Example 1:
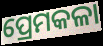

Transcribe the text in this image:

ପ୍ରେମକଳା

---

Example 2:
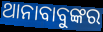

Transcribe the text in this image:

ଥାନାବାବୁଙ୍କର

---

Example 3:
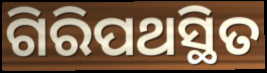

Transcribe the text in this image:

ଗିରିପଥସ୍ଥିତ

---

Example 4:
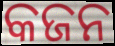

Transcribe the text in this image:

କଜନ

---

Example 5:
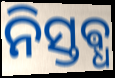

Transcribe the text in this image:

ନିସ୍ତଵ୍ଧ